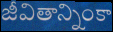
జీవితాన్నింకా